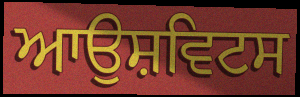
ਆਉਸ਼ਵਿਟਸ